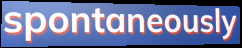
spontaneously